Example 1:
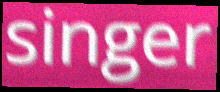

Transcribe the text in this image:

singer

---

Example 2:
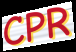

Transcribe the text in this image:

CPR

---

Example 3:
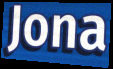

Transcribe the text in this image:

Jona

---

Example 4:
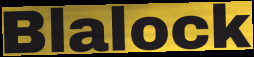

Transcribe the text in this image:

Blalock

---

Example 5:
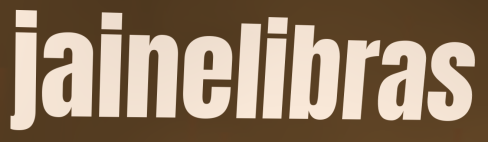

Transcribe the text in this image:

jainelibras